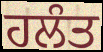
ਹਲੰਤ